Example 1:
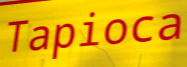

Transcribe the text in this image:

Tapioca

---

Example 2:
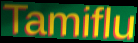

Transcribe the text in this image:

Tamiflu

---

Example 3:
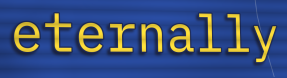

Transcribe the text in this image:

eternally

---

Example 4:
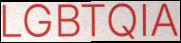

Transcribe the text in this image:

LGBTQIA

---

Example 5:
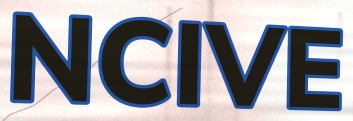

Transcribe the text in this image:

NCIVE